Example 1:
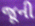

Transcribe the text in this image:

જૂની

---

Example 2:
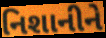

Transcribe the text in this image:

નિશાનીને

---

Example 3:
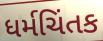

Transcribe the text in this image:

ધર્મચિંતક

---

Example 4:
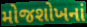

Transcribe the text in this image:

મોજશોખનાં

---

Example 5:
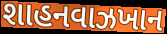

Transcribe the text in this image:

શાહનવાઝખાન